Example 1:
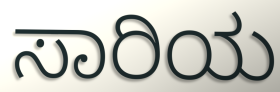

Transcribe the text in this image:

ಸಾರಿಯ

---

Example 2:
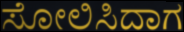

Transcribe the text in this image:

ಸೋಲಿಸಿದಾಗ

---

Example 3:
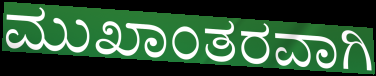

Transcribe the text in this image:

ಮುಖಾಂತರವಾಗಿ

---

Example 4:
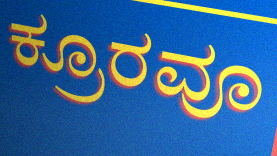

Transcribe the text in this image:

ಕ್ರೂರವೂ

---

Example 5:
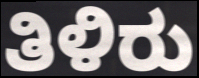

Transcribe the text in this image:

ತಿಳಿರು